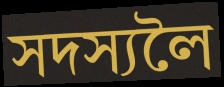
সদস্যলৈ